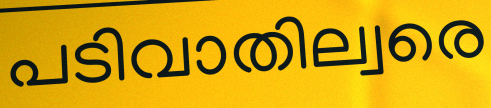
പടിവാതില്വരെ